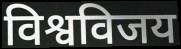
विश्वविजय